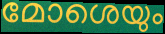
മോശെയും